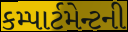
કમ્પાર્ટમેન્ટની